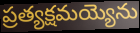
ప్రత్యక్షమయ్యెను